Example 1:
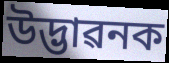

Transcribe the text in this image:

উদ্ভাৱনক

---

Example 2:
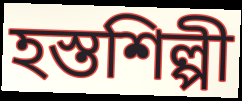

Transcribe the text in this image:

হস্তশিল্পী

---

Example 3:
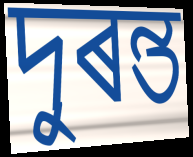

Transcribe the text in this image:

দুৰন্ত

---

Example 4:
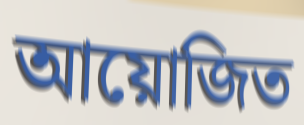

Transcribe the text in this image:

আয়োজিত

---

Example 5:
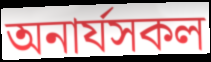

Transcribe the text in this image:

অনাৰ্যসকল